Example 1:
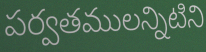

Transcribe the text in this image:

పర్వతములన్నిటిని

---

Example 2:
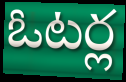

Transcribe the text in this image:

ఓటర్ల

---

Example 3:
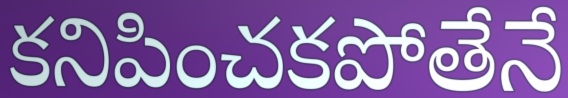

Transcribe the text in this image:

కనిపించకపోతేనే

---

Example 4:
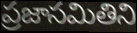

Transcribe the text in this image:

ప్రజాసమితిని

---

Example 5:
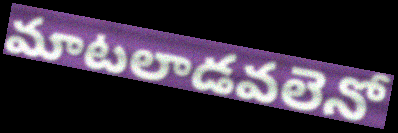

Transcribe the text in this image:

మాటలాడవలెనో